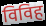
विविह